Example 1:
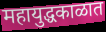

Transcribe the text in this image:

महायुद्धकाळात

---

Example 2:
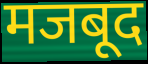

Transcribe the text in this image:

मजबूद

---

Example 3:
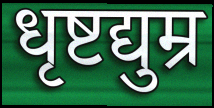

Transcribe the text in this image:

धृष्टद्युम्र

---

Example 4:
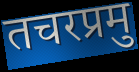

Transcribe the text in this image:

तचरप्रमु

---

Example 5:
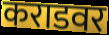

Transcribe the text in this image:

कराडवर